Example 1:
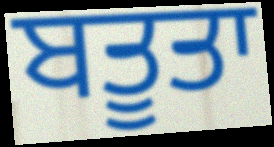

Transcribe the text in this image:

ਬਤੂਤਾ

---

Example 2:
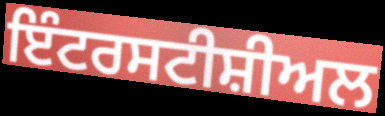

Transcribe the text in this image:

ਇੰਟਰਸਟੀਸ਼ੀਅਲ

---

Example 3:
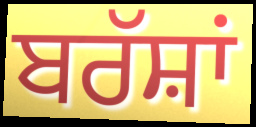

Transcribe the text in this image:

ਬਰੱਸ਼ਾਂ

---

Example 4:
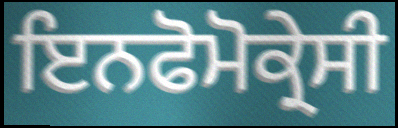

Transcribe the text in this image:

ਇਨਫੋਮੋਕ੍ਰੇਸੀ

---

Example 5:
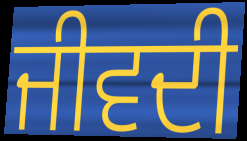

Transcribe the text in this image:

ਜੀਵਦੀ